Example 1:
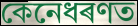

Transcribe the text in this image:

কেনেধৰণত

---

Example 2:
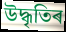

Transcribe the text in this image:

উদ্ধৃতিৰ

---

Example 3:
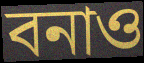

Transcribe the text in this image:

বনাও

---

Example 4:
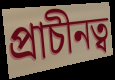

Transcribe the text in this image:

প্ৰাচীনত্ব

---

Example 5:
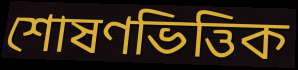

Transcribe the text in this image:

শোষণভিত্তিক